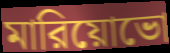
মারিয়োভো